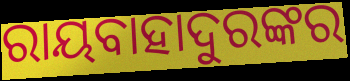
ରାୟବାହାଦୁରଙ୍କର